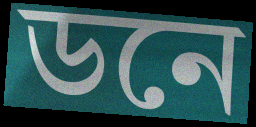
ডনে